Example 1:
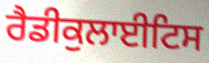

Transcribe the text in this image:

ਰੈਡੀਕੁਲਾਈਟਿਸ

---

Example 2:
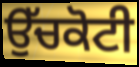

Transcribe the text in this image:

ਉੱਚਕੋਟੀ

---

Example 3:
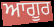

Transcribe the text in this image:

ਆਗੂਰ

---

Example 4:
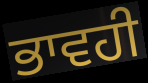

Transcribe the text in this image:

ਭਾਵਹੀ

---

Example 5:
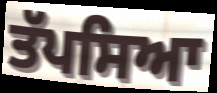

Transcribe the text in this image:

ਤੱਪਸਿਆ